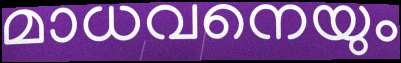
മാധവനെയും